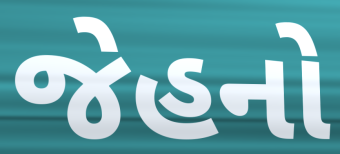
જેહનો